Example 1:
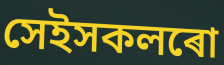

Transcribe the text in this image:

সেইসকলৰো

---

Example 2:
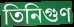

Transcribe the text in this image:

তিনিগুণ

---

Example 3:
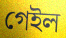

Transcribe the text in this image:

গেইল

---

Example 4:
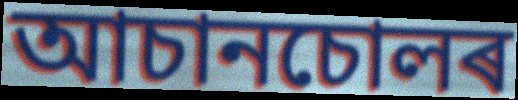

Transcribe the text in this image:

আচানচোলৰ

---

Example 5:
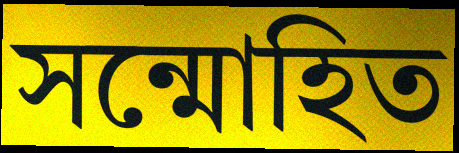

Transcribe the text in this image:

সন্মোহিত